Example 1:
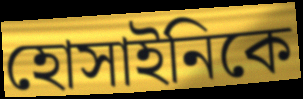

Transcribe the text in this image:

হোসাইনিকে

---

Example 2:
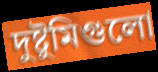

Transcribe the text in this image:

দুষ্টুমিগুলো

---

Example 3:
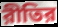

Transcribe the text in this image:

রীতির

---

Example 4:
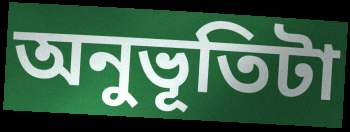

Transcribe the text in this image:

অনুভূতিটা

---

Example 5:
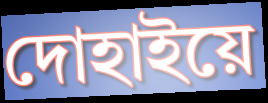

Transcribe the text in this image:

দোহাইয়ে